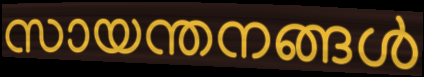
സായന്തനങ്ങൾ